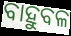
ବାହୁବଳ